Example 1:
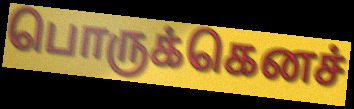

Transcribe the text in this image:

பொருக்கெனச்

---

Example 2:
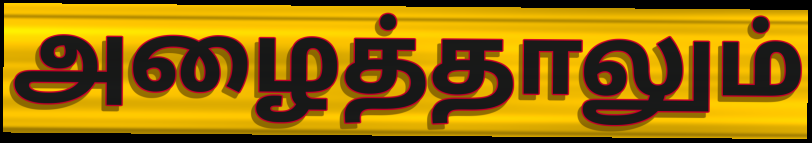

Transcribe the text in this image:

அழைத்தாலும்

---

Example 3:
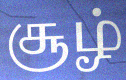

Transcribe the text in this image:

சூழ்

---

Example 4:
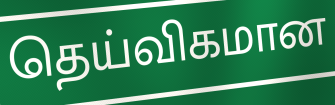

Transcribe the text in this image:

தெய்விகமான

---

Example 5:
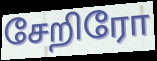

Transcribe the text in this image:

சேறிரோ